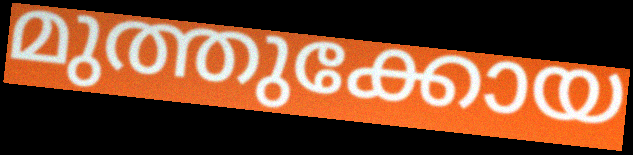
മുത്തുക്കോയ